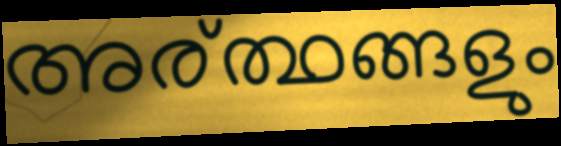
അര്ത്ഥങ്ങളും